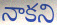
నాకని